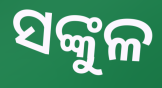
ସଙ୍କୁଳ